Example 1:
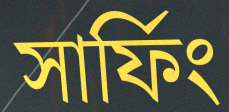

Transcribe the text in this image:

সার্ফিং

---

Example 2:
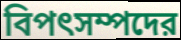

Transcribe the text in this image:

বিপৎসম্পদের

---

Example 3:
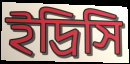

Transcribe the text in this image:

ইদ্রিসি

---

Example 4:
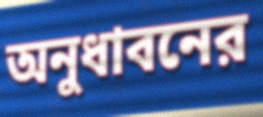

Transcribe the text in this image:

অনুধাবনের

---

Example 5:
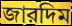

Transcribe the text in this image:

জারদিম